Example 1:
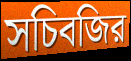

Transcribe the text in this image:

সচিবজির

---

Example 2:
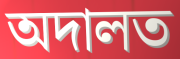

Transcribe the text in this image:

অদালত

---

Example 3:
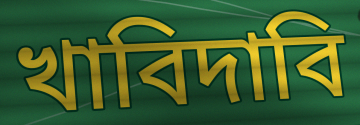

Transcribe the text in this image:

খাবিদাবি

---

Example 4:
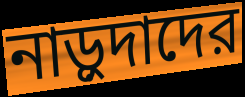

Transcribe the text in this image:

নাড়ুদাদের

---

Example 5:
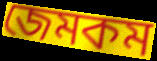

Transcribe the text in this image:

জেমকম